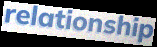
relationship